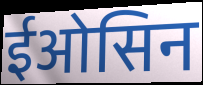
ईओसिन